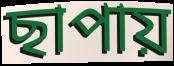
ছাপায়